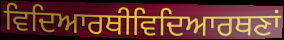
ਵਿਦਿਆਰਥੀਵਿਦਿਆਰਥਣਾਂ